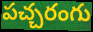
పచ్చరంగు